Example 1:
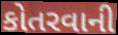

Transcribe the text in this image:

કોતરવાની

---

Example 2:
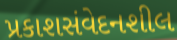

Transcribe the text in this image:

પ્રકાશસંવેદનશીલ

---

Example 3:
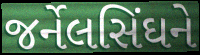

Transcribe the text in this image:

જર્નેલસિંઘને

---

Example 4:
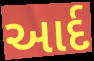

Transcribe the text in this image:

આર્દ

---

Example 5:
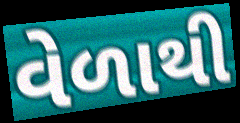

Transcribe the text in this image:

વેળાથી